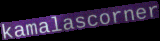
kamalascorner